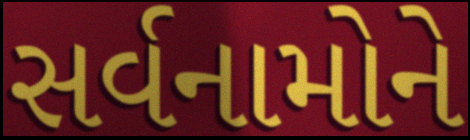
સર્વનામોને